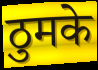
ठुमके